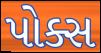
પોક્સ